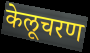
केलूचरण